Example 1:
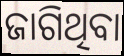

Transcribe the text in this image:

ଜାଗିଥିବା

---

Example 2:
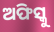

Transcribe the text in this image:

ଅଫିସ୍କୁ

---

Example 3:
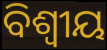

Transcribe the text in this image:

ବିଶ୍ଵୀୟ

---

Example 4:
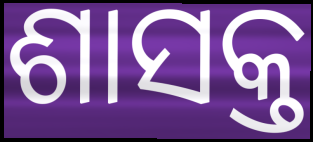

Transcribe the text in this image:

ଶାସକ୍ତ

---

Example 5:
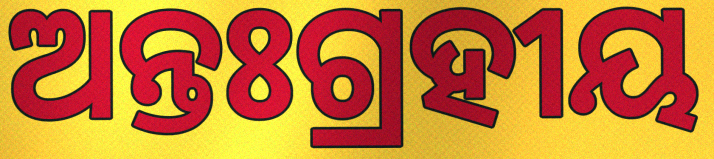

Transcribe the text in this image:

ଅନ୍ତଃଗ୍ରହୀୟ